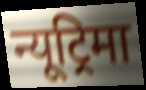
न्यूट्रिमा